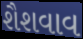
શૈશવાવ